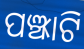
ପଞ୍ଝାଟି